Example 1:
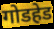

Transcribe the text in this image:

गोडहेड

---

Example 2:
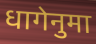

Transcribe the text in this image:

धागेनुमा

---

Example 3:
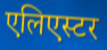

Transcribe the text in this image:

एलिएस्टर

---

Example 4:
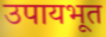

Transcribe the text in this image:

उपायभूत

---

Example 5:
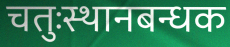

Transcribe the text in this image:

चतुःस्थानबन्धक